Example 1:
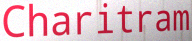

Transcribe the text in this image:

Charitram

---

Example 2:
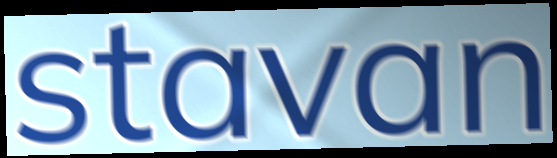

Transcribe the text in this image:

stavan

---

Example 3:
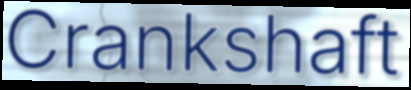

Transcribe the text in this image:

Crankshaft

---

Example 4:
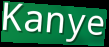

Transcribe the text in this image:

Kanye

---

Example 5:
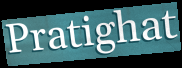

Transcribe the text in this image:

Pratighat